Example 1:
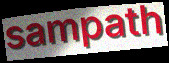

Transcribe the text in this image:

sampath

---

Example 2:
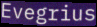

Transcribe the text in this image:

Evegrius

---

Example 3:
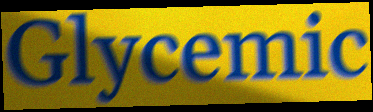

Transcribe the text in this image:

Glycemic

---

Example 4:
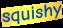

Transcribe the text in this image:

squishy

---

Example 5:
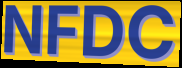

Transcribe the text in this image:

NFDC